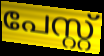
പേസ്റ്റ്